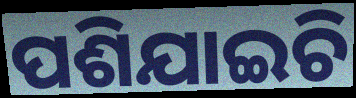
ପଶିଯାଇଚି